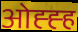
ओह्ह्ह